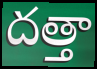
దత్తా